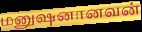
மனுஷனானவன்